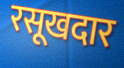
रसूखदार